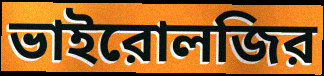
ভাইরোলজির